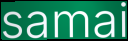
samai